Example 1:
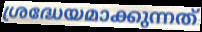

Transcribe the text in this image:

ശ്രദ്ധേയമാക്കുന്നത്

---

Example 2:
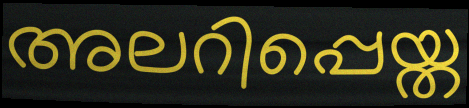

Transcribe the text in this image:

അലറിപ്പെയ്ത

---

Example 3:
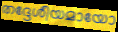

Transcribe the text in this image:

തദ്ദേശീയമായോ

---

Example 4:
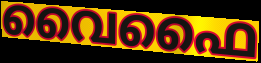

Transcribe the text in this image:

വൈഫൈ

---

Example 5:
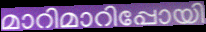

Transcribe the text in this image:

മാറിമാറിപ്പോയി